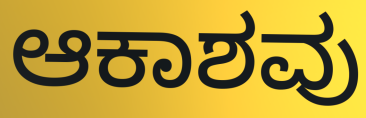
ಆಕಾಶವು